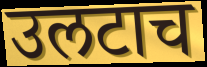
उलटाच